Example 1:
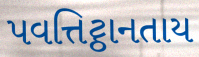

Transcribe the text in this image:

પવત્તિટ્ઠાનતાય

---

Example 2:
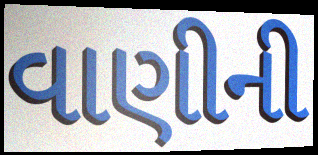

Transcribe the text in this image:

વાણીની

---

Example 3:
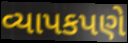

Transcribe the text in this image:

વ્યાપકપણે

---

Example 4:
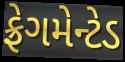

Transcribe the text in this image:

ફ્રેગમેન્ટેડ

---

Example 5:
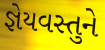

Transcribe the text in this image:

જ્ઞેયવસ્તુને